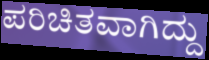
ಪರಿಚಿತವಾಗಿದ್ದು